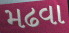
મઢવા